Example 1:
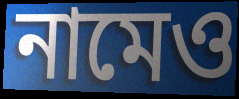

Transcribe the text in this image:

নামেও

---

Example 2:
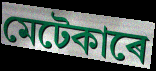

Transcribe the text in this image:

মেটেকাৰে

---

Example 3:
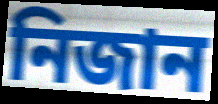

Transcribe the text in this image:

নিজান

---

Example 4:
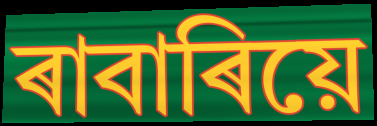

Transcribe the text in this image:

ৰাবাৰিয়ে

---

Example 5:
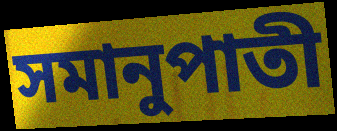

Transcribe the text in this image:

সমানুপাতী